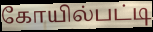
கோயில்பட்டி